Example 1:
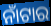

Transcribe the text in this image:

ନାଁଟାର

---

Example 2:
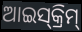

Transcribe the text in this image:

ଆଇସ୍‍କ୍ରିମ୍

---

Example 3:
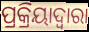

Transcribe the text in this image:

ପ୍ରକ୍ରିୟାଦ୍ଵାରା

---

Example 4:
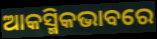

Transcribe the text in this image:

ଆକସ୍ମିକଭାବରେ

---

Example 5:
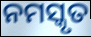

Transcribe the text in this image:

ନମସ୍କୃତ